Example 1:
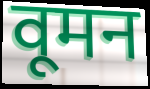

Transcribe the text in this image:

वूमन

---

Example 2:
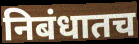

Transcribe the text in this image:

निबंधातच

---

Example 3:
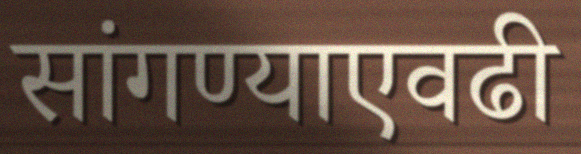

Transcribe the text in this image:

सांगण्याएवढी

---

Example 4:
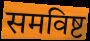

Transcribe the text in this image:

समविष्ट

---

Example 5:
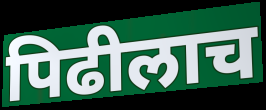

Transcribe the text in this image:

पिढीलाच